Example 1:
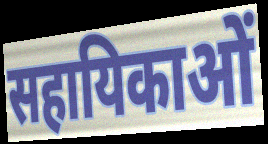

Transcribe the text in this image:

सहायिकाओं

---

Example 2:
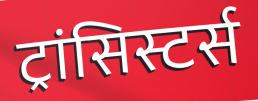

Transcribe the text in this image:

ट्रांसिस्टर्स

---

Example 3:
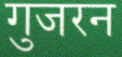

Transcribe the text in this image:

गुजरन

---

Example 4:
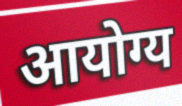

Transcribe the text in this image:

आयोग्य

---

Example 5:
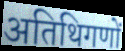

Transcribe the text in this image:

अतिथिगणों